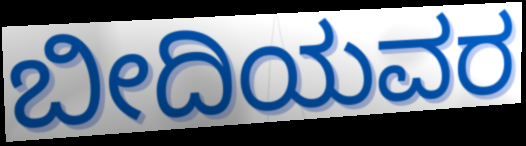
ಬೀದಿಯವರ